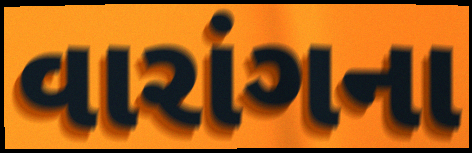
વારાંગના